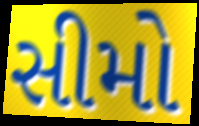
સીમો